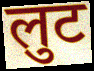
लुट